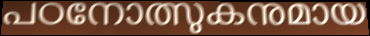
പഠനോത്സുകനുമായ